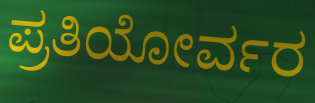
ಪ್ರತಿಯೋರ್ವರ